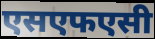
एसएफएसी